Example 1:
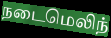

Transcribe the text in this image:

நடைமெலிந்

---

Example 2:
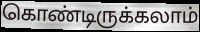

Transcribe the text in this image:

கொண்டிருக்கலாம்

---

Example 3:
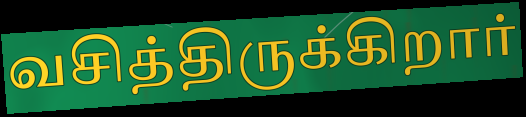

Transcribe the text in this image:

வசித்திருக்கிறார்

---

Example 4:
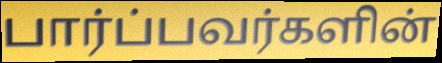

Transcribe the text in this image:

பார்ப்பவர்களின்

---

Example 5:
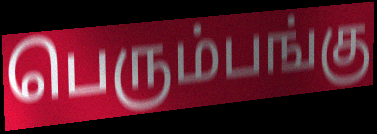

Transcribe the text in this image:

பெரும்பங்கு